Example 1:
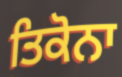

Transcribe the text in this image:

ਤਿਕੋਨਾ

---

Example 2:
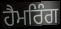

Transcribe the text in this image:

ਹੈਮਰਿੰਗ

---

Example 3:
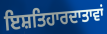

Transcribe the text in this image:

ਇਸ਼ਤਿਹਾਰਦਾਤਾਵਾਂ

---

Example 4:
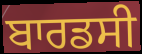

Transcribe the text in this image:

ਬਾਰਡਸੀ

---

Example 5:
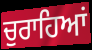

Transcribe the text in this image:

ਚੁਰਾਹਿਆਂ